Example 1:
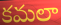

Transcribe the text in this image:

కమలా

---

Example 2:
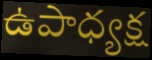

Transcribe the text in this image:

ఉపాధ్యక్ష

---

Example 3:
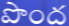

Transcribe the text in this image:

పొంద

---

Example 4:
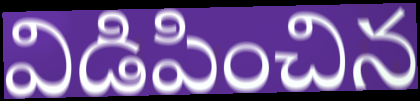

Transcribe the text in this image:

విడిపించిన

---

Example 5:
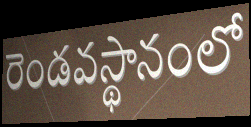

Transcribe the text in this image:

రెండవస్థానంలో